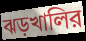
ঝড়খালির